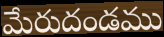
మేరుదండము